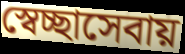
স্বেচ্ছাসেবায়